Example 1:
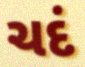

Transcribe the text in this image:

ચદં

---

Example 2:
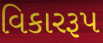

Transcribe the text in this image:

વિકારરૂપ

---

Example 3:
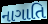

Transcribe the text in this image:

નાગાતિ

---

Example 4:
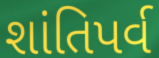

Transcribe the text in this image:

શાંતિપર્વ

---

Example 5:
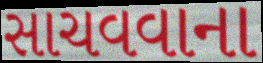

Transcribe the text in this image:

સાચવવાના